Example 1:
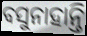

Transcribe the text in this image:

ବସୁନାହାନ୍ତି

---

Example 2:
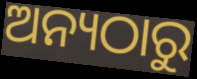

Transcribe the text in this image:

ଅନ୍ୟଠାରୁ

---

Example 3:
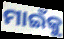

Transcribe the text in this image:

ମାଇଁକୁ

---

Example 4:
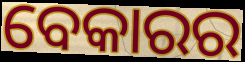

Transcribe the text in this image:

ବେକାରର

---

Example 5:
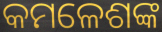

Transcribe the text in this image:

କମଳେଶଙ୍କ